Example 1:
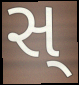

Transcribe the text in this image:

સ્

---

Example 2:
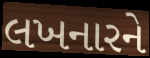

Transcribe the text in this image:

લખનારને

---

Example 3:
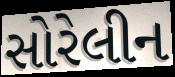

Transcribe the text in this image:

સોરેલીન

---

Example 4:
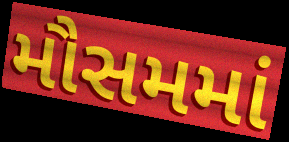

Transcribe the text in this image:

મૌસમમાં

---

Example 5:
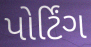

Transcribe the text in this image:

પોર્ટિંગ